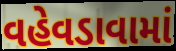
વહેવડાવામાં